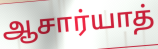
ஆசார்யாத்